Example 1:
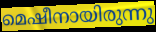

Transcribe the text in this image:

മെഷീനായിരുന്നു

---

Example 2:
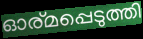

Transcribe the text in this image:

ഓര്മപ്പെടുത്തി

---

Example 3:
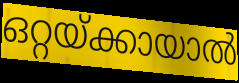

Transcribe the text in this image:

ഒറ്റയ്ക്കായാൽ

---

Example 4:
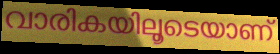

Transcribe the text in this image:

വാരികയിലൂടെയാണ്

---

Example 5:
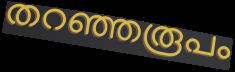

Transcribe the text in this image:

തറഞ്ഞരൂപം